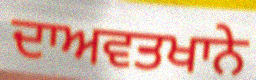
ਦਾਅਵਤਖਾਨੇ